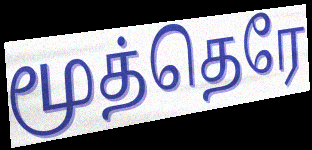
மூத்தெரே